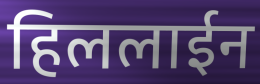
हिललाईन